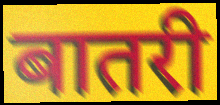
बातरी